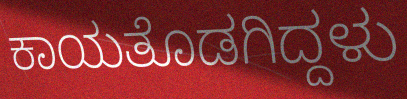
ಕಾಯತೊಡಗಿದ್ದಳು